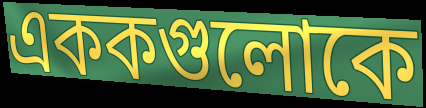
এককগুলোকে